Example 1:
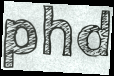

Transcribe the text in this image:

phd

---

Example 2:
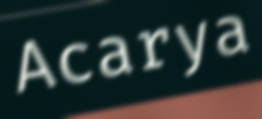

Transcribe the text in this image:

Acarya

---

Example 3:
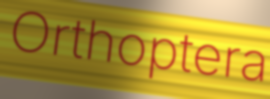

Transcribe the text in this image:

Orthoptera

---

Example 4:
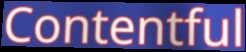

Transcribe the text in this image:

Contentful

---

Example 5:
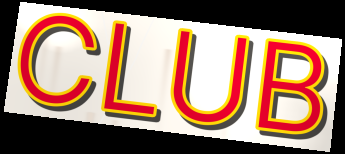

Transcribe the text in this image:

CLUB